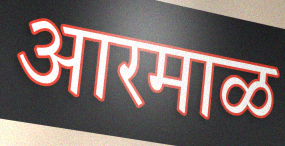
आरमाळ